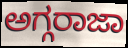
ಅಗ್ಗರಾಜಾ